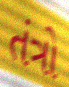
તંત્રો